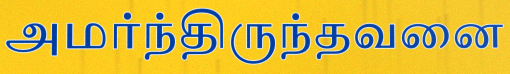
அமர்ந்திருந்தவனை